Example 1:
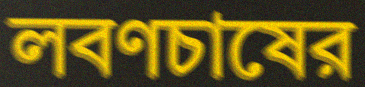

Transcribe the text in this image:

লবণচাষের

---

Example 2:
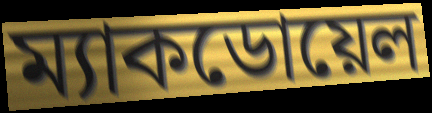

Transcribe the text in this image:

ম্যাকডোয়েল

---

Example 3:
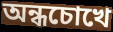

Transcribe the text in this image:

অন্ধচোখে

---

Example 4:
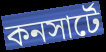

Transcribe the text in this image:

কনসার্টে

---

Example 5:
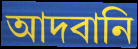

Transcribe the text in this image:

আদবানি